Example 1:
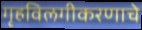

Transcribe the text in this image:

गृहविलगीकरणाचे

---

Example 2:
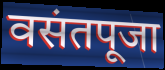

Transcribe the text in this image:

वसंतपूजा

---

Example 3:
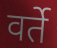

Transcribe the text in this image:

वर्ते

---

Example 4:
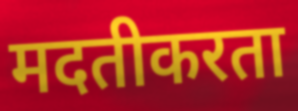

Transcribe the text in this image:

मदतीकरता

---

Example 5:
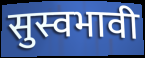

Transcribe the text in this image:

सुस्वभावी